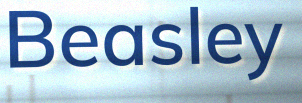
Beasley